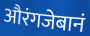
औरंगजेबानं